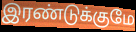
இரண்டுக்குமே